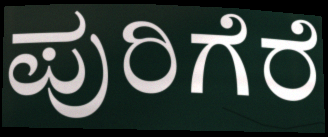
ಪುರಿಗೆರೆ